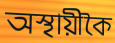
অস্থায়ীকৈ